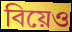
বিয়েও